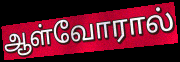
ஆள்வோரால்